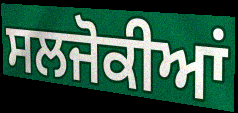
ਸਲਜੋਕੀਆਂ